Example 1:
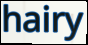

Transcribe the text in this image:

hairy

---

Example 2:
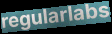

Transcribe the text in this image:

regularlabs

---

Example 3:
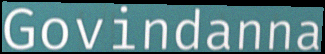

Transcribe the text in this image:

Govindanna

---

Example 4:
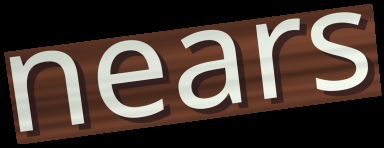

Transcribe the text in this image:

nears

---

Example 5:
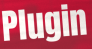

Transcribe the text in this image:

Plugin